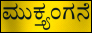
ಮುಕ್ತ್ಯಂಗನೆ